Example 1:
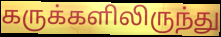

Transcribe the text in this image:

கருக்களிலிருந்து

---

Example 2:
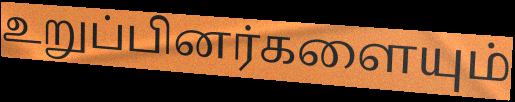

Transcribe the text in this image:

உறுப்பினர்களையும்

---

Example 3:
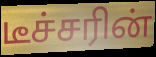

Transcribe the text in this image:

டீச்சரின்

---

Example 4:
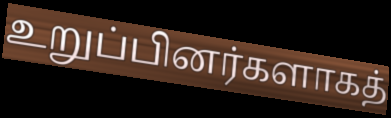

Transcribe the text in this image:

உறுப்பினர்களாகத்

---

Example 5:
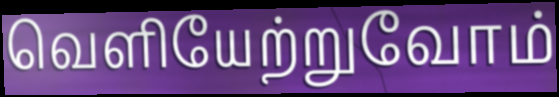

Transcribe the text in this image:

வெளியேற்றுவோம்